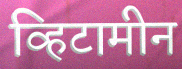
व्हिटामीन